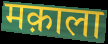
मक़ाला